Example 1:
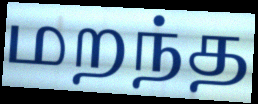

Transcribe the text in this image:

மறந்த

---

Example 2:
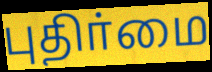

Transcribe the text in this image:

புதிர்மை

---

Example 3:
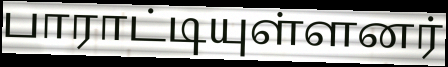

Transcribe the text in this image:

பாராட்டியுள்ளனர்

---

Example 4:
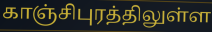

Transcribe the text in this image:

காஞ்சிபுரத்திலுள்ள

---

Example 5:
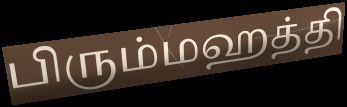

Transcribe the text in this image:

பிரும்மஹத்தி